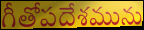
గీతోపదేశమును